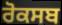
ਰੋਕਸਬ